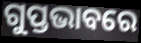
ଗୁପ୍ତଭାବରେ